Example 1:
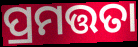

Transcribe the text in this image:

ପ୍ରମତ୍ତତା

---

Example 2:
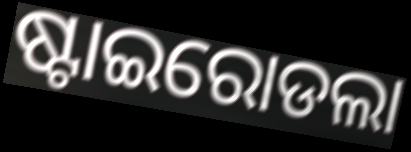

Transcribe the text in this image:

ଷ୍ଟାଇରୋଡଲା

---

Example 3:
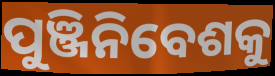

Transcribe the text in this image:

ପୁଞ୍ଜିନିବେଶକୁ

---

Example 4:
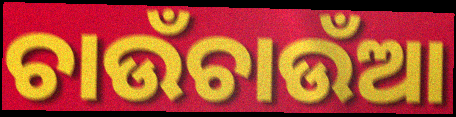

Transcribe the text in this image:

ଚାଉଁଚାଉଁଆ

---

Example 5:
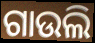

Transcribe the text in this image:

ଗାଉଲି